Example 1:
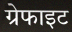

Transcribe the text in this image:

ग्रेफाइट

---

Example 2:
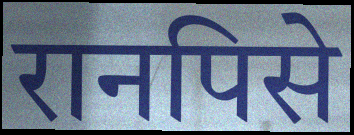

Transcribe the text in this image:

रानपिसे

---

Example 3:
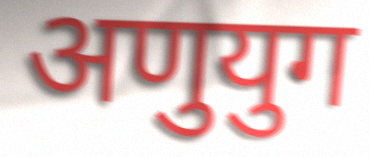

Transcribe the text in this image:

अणुयुग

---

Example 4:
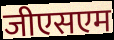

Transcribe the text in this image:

जीएसएम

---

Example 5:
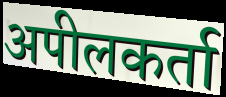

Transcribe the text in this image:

अपीलकर्ता